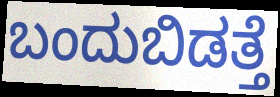
ಬಂದುಬಿಡತ್ತೆ